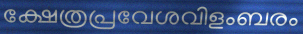
ക്ഷേത്രപ്രവേശവിളംബരം